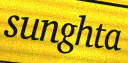
sunghta